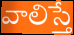
వాలిస్తే